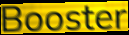
Booster